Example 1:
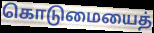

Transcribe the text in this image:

கொடுமையைத்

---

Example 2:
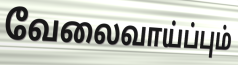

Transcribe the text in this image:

வேலைவாய்ப்பும்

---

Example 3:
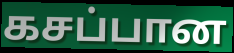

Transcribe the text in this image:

கசப்பான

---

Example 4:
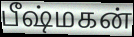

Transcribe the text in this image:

பீஷ்மகன்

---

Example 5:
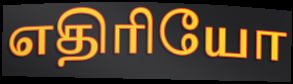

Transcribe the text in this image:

எதிரியோ